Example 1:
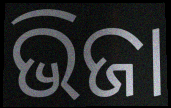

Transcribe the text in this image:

ଭିଜା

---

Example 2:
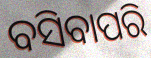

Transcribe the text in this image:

ବସିବାପରି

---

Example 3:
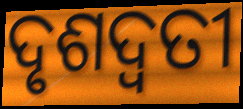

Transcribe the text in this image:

ଦୃଶଦ୍ୱତୀ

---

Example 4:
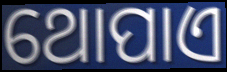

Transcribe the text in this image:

ଥୋପାଏ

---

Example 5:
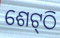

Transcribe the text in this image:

ଶେଟ୍‍ଠି